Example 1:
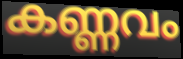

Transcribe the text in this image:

കണ്ണവം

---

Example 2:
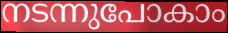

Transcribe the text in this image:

നടന്നുപോകാം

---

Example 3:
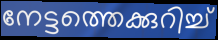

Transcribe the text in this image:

നേട്ടത്തെക്കുറിച്ച്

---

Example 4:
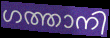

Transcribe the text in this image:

ഗത്താനി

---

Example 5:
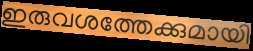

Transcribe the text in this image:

ഇരുവശത്തേക്കുമായി